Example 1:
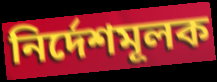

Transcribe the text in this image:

নির্দেশমূলক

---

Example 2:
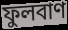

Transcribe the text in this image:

ফুলবাণ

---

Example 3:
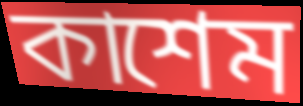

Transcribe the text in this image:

কাশেম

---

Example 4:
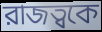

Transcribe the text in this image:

রাজত্বকে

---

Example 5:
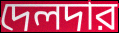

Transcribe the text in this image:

দেলদার